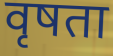
वृषता